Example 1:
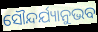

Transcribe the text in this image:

ସୌନ୍ଦର୍ଯ୍ୟାନୁଭବ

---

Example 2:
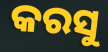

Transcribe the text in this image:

କରସୁ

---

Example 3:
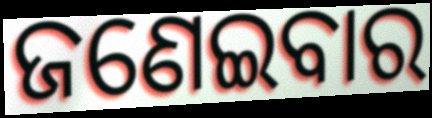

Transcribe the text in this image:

ଜଣେଇବାର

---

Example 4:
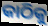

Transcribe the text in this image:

କାଠିକୁ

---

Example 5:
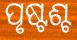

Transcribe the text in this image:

ପୃଷ୍ଟଶ୍ଚ